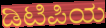
ಡಿಟಿಪಿಯ